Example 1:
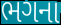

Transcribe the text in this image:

ભગના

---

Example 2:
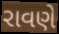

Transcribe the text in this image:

રાવણે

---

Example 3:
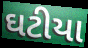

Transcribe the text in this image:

ઘટીયા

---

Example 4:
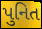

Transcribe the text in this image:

પુનિત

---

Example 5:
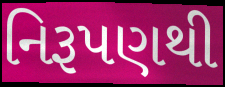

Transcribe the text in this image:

નિરૂપણથી